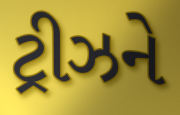
ટ્રીઝને